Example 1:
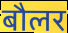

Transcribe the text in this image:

बौलर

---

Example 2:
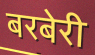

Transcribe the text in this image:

बरबेरी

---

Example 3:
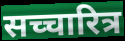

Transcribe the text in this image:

सच्चारित्र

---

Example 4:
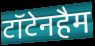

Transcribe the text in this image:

टॉटेनहैम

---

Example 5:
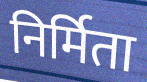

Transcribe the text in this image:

निर्मिता